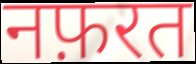
नफ़रत